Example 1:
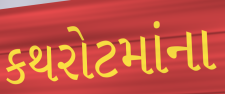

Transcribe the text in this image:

કથરોટમાંના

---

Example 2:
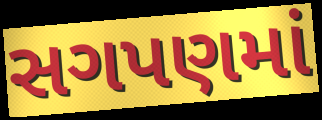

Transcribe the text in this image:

સગપણમાં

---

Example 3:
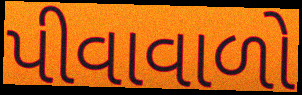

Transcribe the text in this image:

પીવાવાળો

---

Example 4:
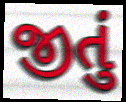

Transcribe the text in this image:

જીતું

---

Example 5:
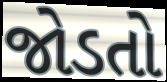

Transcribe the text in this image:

જોડતો